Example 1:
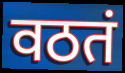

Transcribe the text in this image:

वठतं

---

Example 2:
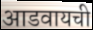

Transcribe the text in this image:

आडवायची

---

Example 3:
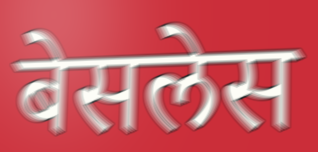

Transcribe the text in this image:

बेसलेस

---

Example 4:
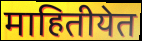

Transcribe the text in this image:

माहितीयेत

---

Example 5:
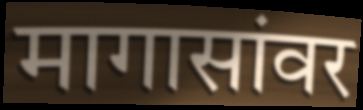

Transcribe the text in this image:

मागासांवर